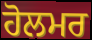
ਹੋਲਮਰ